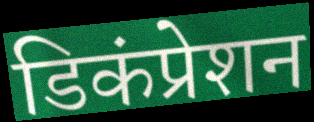
डिकंप्रेशन